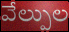
వేల్పుల